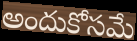
అందుకోసమే